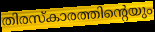
തിരസ്കാരത്തിന്റെയും